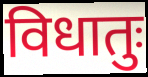
विधातुः